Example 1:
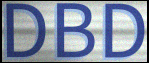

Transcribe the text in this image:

DBD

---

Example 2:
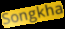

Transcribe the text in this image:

Songkha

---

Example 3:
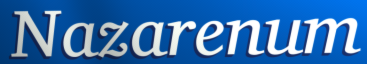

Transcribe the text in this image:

Nazarenum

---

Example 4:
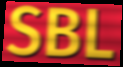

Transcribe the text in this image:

SBL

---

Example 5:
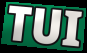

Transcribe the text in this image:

TUI